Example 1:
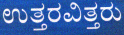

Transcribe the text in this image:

ಉತ್ತರವಿತ್ತರು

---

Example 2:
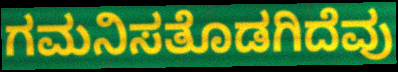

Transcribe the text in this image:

ಗಮನಿಸತೊಡಗಿದೆವು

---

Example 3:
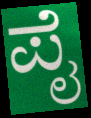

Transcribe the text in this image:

ಪೈ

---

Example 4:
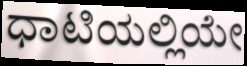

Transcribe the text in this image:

ಧಾಟಿಯಲ್ಲಿಯೇ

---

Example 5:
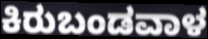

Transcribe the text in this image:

ಕಿರುಬಂಡವಾಳ